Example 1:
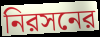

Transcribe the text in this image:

নিরসনের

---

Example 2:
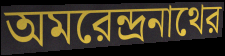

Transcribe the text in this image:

অমরেন্দ্রনাথের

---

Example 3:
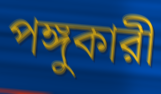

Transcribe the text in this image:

পঙ্গুকারী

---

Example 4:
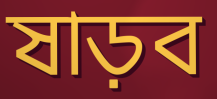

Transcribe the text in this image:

ষাড়ব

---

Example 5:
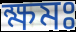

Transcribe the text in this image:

ক্ষমঃ